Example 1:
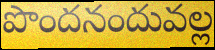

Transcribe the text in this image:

పొందనందువల్ల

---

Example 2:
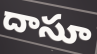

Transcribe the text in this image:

దాసూ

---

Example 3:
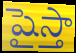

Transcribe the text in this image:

షైస్తా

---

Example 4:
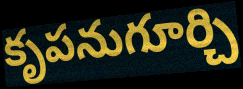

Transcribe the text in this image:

కృపనుగూర్చి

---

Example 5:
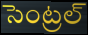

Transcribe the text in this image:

సెంట్రల్